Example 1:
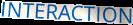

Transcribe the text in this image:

INTERACTION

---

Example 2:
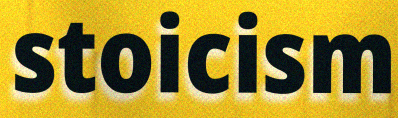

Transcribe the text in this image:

stoicism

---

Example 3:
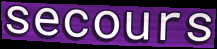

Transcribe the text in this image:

secours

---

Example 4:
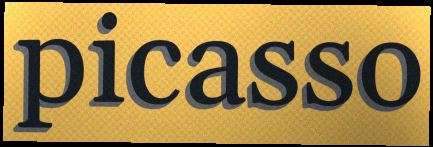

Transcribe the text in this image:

picasso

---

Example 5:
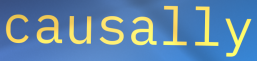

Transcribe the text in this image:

causally